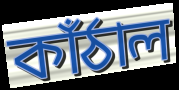
কাঁঠাল